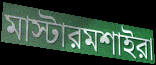
মাস্টারমশাইরা